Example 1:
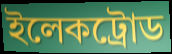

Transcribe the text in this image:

ইলেকট্রোড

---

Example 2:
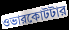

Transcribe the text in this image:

ওভারকোটটার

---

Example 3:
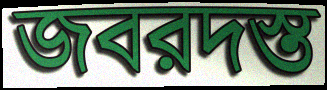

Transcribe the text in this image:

জবরদস্ত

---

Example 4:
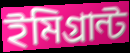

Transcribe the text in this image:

ইমিগ্রান্ট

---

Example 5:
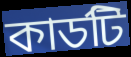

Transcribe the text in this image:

কার্ডটি